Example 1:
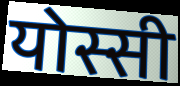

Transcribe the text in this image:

योस्सी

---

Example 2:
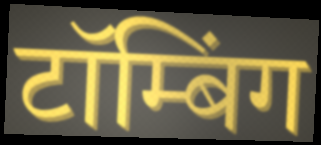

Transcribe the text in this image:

टॉम्बिंग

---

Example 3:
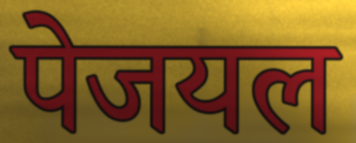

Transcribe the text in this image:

पेजयल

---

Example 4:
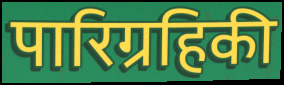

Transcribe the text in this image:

पारिग्रहिकी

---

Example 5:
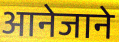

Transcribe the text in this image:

आनेजाने